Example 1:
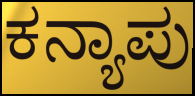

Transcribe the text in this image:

ಕನ್ಯಾಪು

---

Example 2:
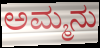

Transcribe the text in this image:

ಅಮ್ಮನು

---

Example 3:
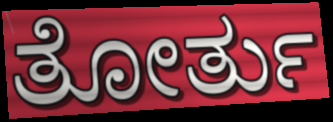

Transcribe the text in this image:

ತೋರ್ತು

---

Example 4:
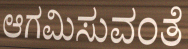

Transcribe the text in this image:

ಆಗಮಿಸುವಂತೆ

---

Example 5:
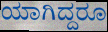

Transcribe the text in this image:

ಯಾಗಿದ್ದರೂ